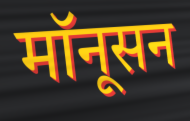
मॉनूसन